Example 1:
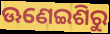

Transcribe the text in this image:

ଊଣେଇଶିରୁ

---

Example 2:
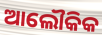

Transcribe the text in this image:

ଆଲୌକିକ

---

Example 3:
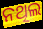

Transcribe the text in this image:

ନଥିଲ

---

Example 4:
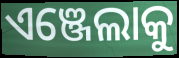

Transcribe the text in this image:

ଏଞ୍ଜେଲାକୁ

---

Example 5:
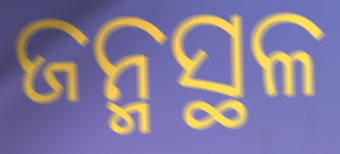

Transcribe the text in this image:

ଜନ୍ମସ୍ଥଳ